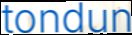
tondun